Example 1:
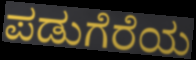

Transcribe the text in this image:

ಪಡುಗೆರೆಯ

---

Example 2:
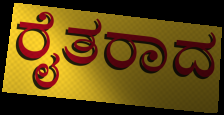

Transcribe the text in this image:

ರೈತರಾದ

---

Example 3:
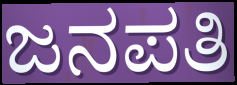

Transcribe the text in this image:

ಜನಪತಿ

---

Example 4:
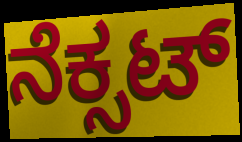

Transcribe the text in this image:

ನೆಕ್ಸಟ್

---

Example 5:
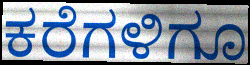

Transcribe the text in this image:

ಕರೆಗಳಿಗೂ